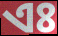
ଏଃ